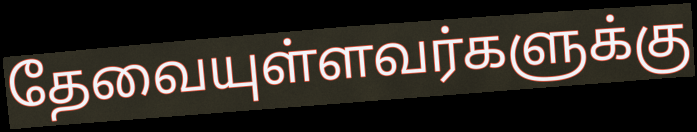
தேவையுள்ளவர்களுக்கு